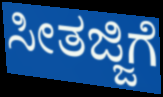
ಸೀತಜ್ಜಿಗೆ